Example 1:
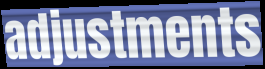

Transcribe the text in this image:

adjustments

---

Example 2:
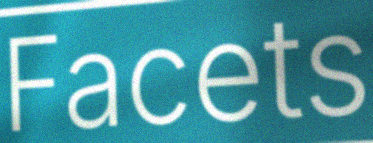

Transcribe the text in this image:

Facets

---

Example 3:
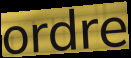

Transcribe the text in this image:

ordre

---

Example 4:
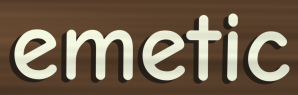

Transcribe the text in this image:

emetic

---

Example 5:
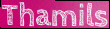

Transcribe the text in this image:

Thamils